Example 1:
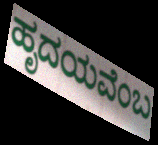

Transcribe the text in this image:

ಹೃದಯವೆಂಬ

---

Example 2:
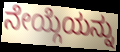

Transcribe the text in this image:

ನೇಯ್ಗೆಯನ್ನು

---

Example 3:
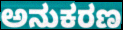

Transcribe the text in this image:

ಅನುಕರಣ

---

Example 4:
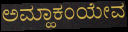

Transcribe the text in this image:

ಅಮ್ಹಾಕಂಯೇವ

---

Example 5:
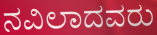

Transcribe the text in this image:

ನವಿಲಾದವರು